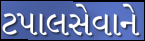
ટપાલસેવાને